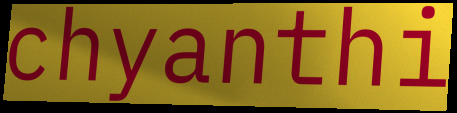
chyanthi